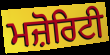
ਮਜ਼ੋਰਿਟੀ